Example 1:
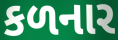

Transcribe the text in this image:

કળનાર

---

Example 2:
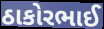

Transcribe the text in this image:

ઠાકોરભાઈ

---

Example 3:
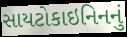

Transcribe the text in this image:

સાયટોકાઇનિનનું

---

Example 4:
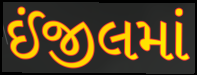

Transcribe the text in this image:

ઈંજીલમાં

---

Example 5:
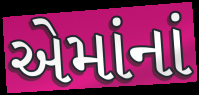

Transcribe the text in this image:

એમાંનાં